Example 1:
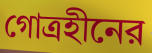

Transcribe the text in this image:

গোত্রহীনের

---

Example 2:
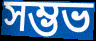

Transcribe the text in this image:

সম্ভভ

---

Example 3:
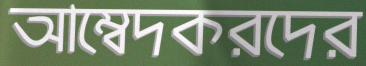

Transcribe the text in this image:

আম্বেদকরদের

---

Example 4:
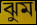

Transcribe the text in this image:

ঝুম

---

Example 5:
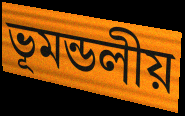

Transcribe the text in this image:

ভূমন্ডলীয়